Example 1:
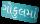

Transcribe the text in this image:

ગોકુલમાં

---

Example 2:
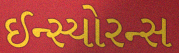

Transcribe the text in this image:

ઈન્સ્યોરન્સ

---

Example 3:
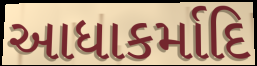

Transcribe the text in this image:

આધાકર્માદિ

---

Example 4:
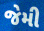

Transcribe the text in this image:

જેમી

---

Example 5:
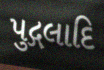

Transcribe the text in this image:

પુદ્ગલાદિ